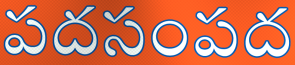
పదసంపద